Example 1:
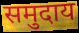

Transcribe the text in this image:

समुदाय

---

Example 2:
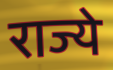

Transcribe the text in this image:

राज्ये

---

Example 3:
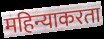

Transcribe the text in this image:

महिन्याकरता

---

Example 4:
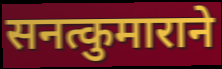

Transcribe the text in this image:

सनत्कुमाराने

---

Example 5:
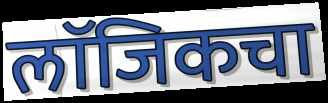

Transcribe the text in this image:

लॉजिकचा